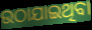
ଉଠାଯାଇଥିବା